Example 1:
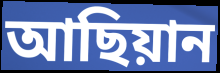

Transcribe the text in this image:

আছিয়ান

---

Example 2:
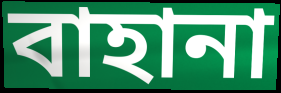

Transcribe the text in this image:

বাহানা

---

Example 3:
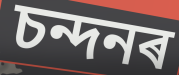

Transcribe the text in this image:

চন্দনৰ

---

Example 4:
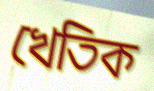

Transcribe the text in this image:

খেতিক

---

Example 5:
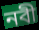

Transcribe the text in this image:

নবী